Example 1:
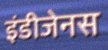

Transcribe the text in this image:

इंडीजेनस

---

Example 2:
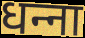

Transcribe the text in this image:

धन्ना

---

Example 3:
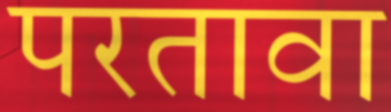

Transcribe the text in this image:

परतावा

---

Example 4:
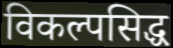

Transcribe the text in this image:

विकल्पसिद्ध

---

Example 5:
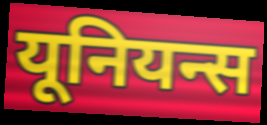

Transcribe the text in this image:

यूनियन्स